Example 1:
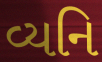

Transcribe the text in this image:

વ્યનિ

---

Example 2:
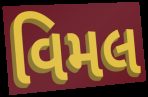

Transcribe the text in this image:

વિમલ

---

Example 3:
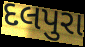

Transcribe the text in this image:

દલપુરા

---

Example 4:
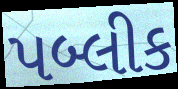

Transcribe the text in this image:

પબ્લીક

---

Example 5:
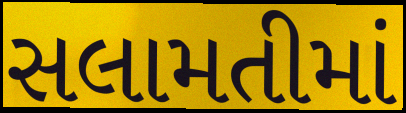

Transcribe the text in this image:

સલામતીમાં